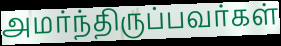
அமர்ந்திருப்பவர்கள்